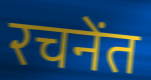
रचनेंत